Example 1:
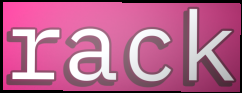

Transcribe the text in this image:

rack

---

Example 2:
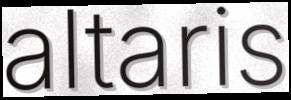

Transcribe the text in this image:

altaris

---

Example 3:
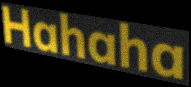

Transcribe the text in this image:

Hahaha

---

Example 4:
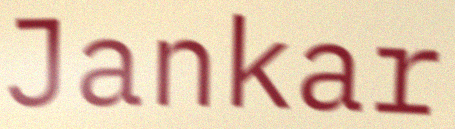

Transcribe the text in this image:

Jankar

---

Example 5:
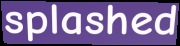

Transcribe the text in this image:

splashed